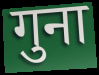
गुना